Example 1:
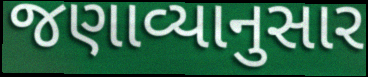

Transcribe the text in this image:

જણાવ્યાનુસાર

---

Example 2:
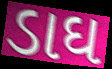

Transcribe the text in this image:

ડાઘ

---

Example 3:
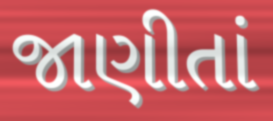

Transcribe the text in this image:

જાણીતાં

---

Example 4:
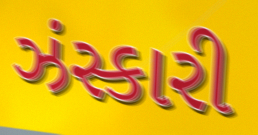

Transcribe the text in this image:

ઝંસ્કારી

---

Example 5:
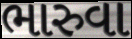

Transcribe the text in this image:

ભારુવા